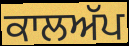
ਕਾਲਅੱਪ